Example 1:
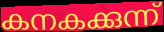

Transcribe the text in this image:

കനകക്കുന്ന്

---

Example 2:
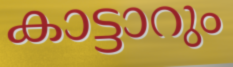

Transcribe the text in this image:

കാട്ടാറും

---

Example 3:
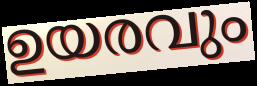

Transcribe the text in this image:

ഉയരവും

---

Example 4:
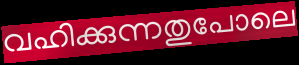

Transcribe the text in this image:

വഹിക്കുന്നതുപോലെ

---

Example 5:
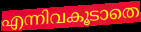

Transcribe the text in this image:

എന്നിവകൂടാതെ